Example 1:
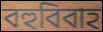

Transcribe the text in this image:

বহুবিবাহ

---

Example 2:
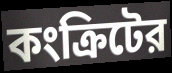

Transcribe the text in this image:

কংক্রিটের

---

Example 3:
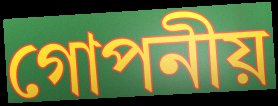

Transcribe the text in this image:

গোপনীয়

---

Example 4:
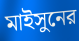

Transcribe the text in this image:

মাইসুনের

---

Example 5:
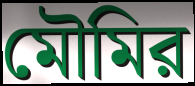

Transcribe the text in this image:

মৌমির